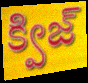
క్విజ్